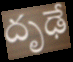
దృఢే